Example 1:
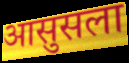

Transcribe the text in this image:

आसुसला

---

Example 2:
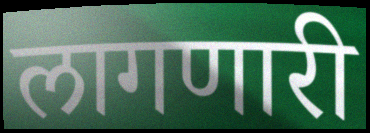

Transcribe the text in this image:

लागणारी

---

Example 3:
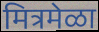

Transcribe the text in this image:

मित्रमेळा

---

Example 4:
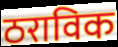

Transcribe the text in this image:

ठराविक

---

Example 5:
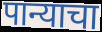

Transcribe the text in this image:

पान्याचा